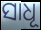
ସାଧୂ